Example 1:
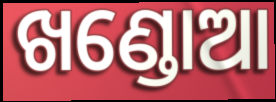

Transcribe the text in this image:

ଖଣ୍ଡୋଆ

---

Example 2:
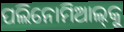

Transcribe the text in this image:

ପଲିନୋମିଆଲ୍‌କୁ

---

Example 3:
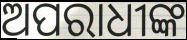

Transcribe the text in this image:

ଅପରାଧୀଙ୍କ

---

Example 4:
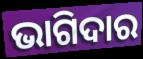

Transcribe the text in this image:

ଭାଗିଦାର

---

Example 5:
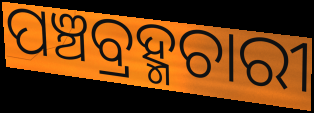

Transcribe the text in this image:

ପଞ୍ଚବ୍ରହ୍ମଚାରୀ